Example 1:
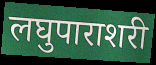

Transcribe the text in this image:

लघुपाराशरी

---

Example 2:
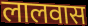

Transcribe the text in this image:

लालवास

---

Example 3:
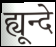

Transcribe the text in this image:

ह्यून्दे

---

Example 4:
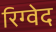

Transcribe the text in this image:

रिग्वेद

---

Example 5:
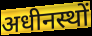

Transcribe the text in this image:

अधीनस्थों